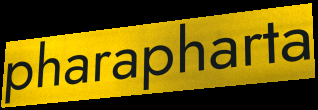
pharapharta